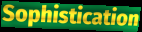
Sophistication